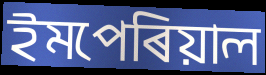
ইমপেৰিয়াল